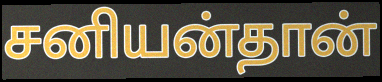
சனியன்தான்